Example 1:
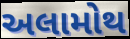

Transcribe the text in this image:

અલામોથ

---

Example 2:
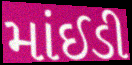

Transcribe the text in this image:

માંઈડી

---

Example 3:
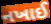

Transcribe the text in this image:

નખાઈ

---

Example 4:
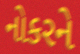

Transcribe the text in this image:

નોકરને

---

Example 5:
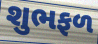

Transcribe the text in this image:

શુભફળ